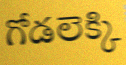
గోడలెక్కి